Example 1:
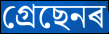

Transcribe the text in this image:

গ্ৰেছেনৰ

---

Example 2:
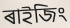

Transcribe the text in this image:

ৰাইজিং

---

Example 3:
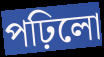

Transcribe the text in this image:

পঢ়িলো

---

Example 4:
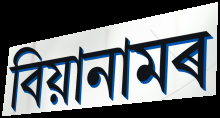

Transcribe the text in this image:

বিয়ানামৰ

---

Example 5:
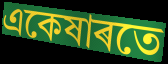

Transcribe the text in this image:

একেষাৰতে